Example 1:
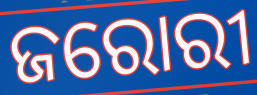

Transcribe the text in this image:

ଜରୋରୀ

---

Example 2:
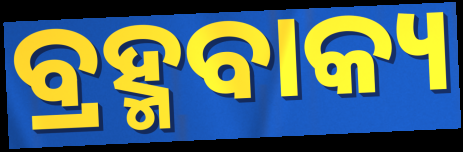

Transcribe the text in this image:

ବ୍ରହ୍ମବାକ୍ୟ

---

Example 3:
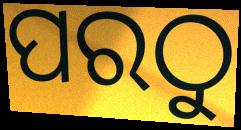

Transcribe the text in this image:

ପରଠୁ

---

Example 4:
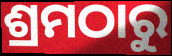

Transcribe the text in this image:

ଶ୍ରମଠାରୁ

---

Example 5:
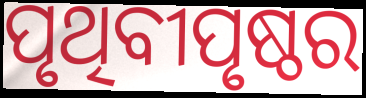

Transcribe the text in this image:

ପୃଥିବୀପୃଷ୍ଠର